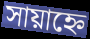
সায়াহ্নে